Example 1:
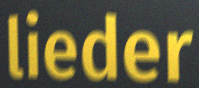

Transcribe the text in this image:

lieder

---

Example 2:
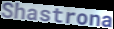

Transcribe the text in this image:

Shastrona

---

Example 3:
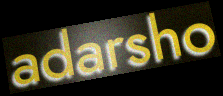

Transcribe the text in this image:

adarsho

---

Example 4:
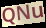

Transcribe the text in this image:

QNu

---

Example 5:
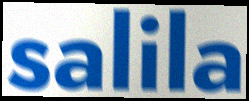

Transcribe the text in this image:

salila